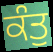
ਕੰਤੁ